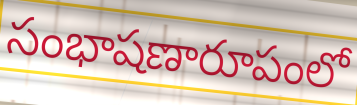
సంభాషణారూపంలో